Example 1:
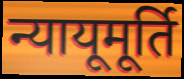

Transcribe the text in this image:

न्यायूमूर्ति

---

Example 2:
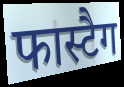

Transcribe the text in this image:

फास्‍टैग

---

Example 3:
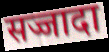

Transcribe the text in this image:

सज्जादा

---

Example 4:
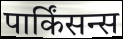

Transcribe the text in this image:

पार्किंसन्स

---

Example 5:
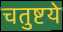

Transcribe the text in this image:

चतुष्टये